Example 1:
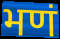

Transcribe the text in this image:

भणं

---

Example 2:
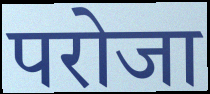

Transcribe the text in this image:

परोजा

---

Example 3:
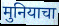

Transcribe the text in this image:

मुनियाचा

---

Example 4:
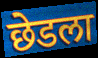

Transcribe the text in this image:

छेडला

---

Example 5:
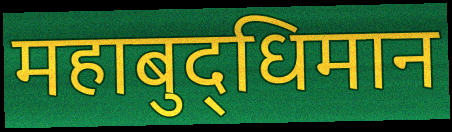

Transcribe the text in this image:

महाबुद्धिमान